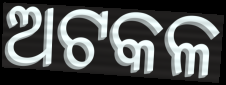
ଅଟକଳ